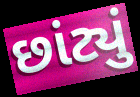
છાંટ્યું